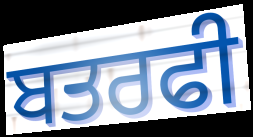
ਬਤਰਫੀ